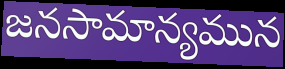
జనసామాన్యమున